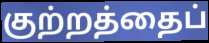
குற்றத்தைப்